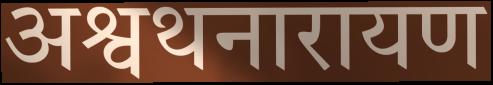
अश्वथनारायण